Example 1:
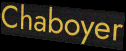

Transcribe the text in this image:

Chaboyer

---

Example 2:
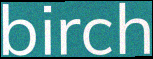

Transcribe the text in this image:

birch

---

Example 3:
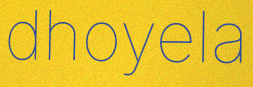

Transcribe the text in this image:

dhoyela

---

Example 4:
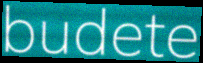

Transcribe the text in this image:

budete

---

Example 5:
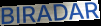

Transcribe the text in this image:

BIRADAR